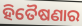
ହିତୈଷଣାର